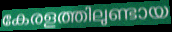
കേരളത്തിലുണ്ടായ